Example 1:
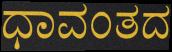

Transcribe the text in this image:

ಧಾವಂತದ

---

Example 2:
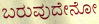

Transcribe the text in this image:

ಬರುವುದೇನೋ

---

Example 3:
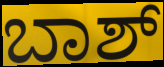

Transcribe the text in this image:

ಬಾಶ್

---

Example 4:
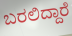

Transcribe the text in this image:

ಬರಲಿದ್ದಾರೆ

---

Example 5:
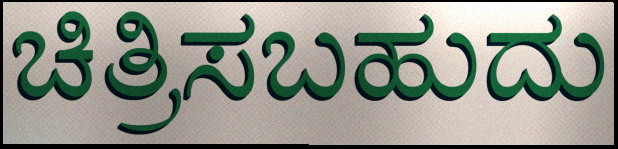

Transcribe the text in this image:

ಚಿತ್ರಿಸಬಹುದು